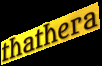
thathera